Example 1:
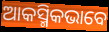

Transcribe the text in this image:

ଆକସ୍ମିକଭାବେ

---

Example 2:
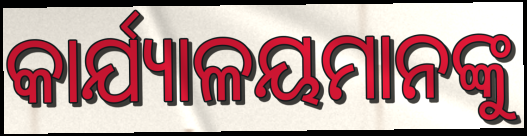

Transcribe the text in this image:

କାର୍ଯ୍ୟାଳୟମାନଙ୍କୁ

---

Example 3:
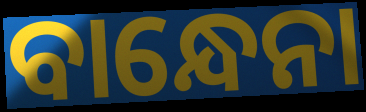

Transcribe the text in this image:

ବାନ୍ଧେନା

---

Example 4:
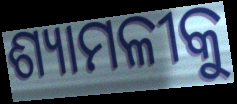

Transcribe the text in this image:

ଶ୍ୟାମଳୀକୁ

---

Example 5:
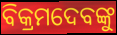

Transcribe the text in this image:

ବିକ୍ରମଦେବଙ୍କୁ